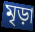
মৃড়া